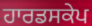
ਹਾਰਡਸਕੇਪ